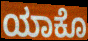
ಯಾಕೊ